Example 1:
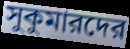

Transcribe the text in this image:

সুকুমারদের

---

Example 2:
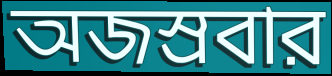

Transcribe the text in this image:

অজস্রবার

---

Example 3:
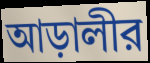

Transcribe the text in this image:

আড়ালীর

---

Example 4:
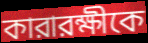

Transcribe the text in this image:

কারারক্ষীকে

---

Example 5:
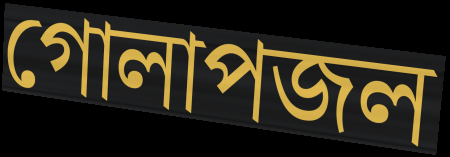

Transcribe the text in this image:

গোলাপজল